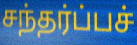
சந்தர்ப்பச்